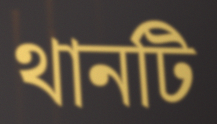
থানটি